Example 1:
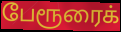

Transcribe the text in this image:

பேரூரைக்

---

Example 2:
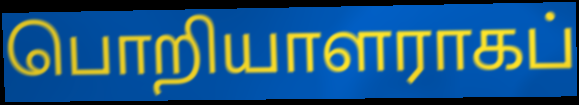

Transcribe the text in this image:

பொறியாளராகப்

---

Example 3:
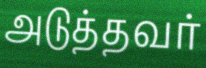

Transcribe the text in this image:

அடுத்தவர்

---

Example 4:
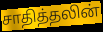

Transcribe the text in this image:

சாதித்தலின்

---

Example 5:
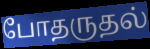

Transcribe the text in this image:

போதருதல்